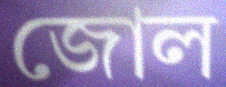
জোল